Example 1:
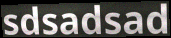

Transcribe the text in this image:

sdsadsad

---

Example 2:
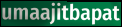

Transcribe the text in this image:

umaajitbapat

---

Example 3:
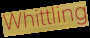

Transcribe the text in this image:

Whittling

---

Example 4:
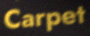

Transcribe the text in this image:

Carpet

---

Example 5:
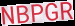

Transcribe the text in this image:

NBPGR